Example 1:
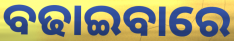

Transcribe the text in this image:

ବଢାଇବାରେ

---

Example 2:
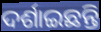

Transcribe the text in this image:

ଦର୍ଶାଇଛନ୍ତି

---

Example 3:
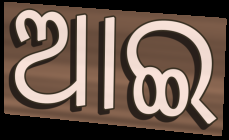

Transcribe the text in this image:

ଆଇ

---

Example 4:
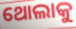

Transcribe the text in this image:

ଥୋଲାକୁ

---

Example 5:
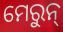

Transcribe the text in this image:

ମେରୁନ୍